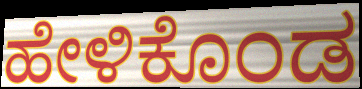
ಹೇಳಿಕೊಂಡ